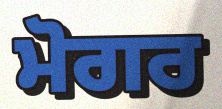
ਮੋਗਰ